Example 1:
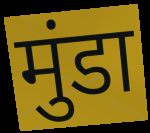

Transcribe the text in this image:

मुंडा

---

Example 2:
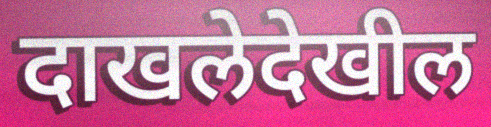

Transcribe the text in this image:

दाखलेदेखील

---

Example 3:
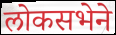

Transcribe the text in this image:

लोकसभेने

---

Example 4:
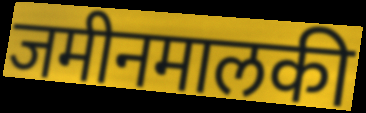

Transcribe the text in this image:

जमीनमालकी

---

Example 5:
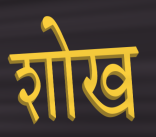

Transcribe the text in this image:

शोख